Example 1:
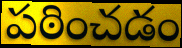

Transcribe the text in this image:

పఠించడం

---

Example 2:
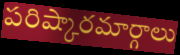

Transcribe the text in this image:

పరిష్కారమార్గాలు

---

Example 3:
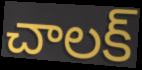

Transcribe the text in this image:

చాలక్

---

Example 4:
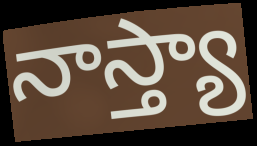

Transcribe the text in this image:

నాస్త్యా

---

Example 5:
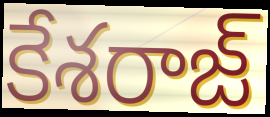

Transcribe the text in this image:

కేశరాజ్